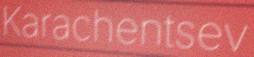
Karachentsev